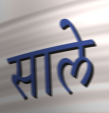
साले